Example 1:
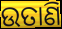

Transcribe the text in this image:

ଉତାଣି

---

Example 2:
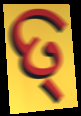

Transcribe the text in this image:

ତ୍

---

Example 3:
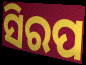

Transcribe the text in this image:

ସିରପ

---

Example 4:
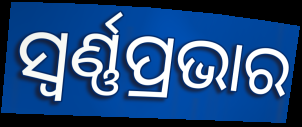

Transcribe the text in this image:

ସ୍ୱର୍ଣ୍ଣପ୍ରଭାର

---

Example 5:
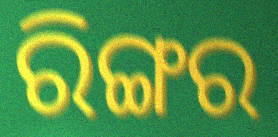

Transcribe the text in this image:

ରିଙ୍ଗର